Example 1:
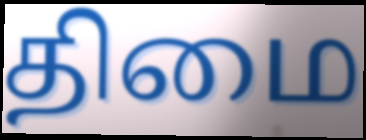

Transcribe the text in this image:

திமை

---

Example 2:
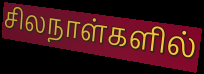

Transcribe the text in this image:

சிலநாள்களில்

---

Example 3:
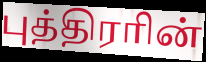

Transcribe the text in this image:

புத்திரரின்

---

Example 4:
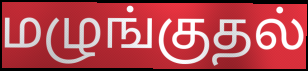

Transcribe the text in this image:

மழுங்குதல்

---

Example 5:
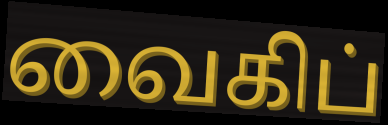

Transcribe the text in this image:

வைகிப்